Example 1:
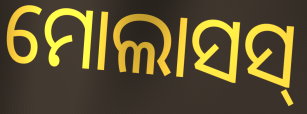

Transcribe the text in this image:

ମୋଲାସସ୍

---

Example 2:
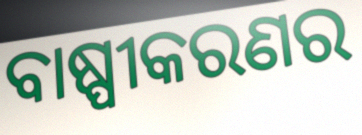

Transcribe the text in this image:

ବାଷ୍ପୀକରଣର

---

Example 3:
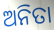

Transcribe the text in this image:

ଅନିତା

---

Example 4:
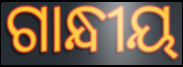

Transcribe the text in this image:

ଗାନ୍ଧୀୟ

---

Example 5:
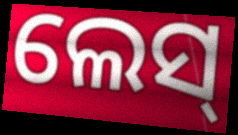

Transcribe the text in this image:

ଲେସ୍